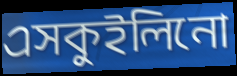
এসকুইলিনো